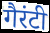
गैरंटी